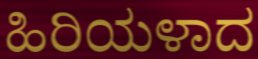
ಹಿರಿಯಳಾದ